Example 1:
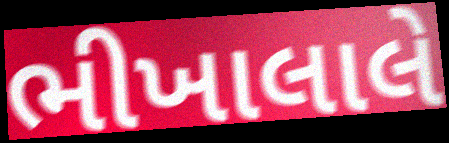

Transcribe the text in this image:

ભીખાલાલે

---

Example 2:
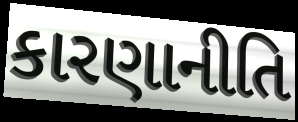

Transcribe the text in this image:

કારણાનીતિ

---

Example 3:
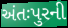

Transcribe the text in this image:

અંતઃપુરની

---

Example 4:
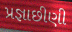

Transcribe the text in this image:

પ્રજ્ઞાછીણી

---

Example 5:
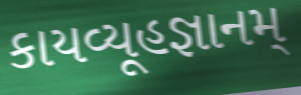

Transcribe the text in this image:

કાયવ્યૂહજ્ઞાનમ્